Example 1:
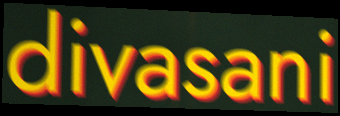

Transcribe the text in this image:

divasani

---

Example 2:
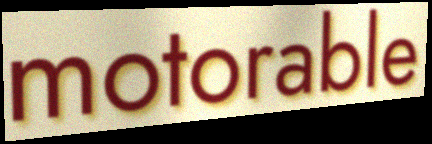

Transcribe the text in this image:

motorable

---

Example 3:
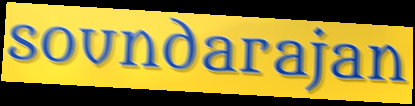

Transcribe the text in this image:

soundarajan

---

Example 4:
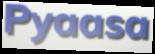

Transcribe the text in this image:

Pyaasa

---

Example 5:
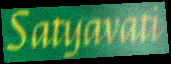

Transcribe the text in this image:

Satyavati